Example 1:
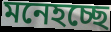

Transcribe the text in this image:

মনেহচ্ছে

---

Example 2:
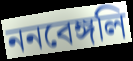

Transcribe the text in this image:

ননবেঙ্গলি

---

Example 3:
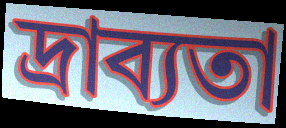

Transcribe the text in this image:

দ্রাব্যতা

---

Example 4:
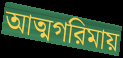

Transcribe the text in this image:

আত্মগরিমায়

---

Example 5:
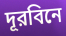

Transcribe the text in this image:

দূরবিনে